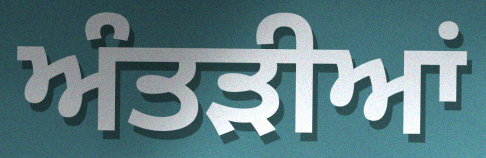
ਅੰਤੜੀਆਂ